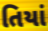
તિયાં